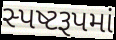
સ્પષ્ટરૂપમાં